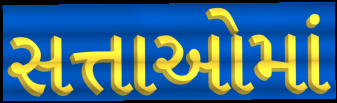
સત્તાઓમાં